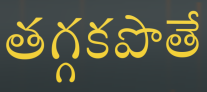
తగ్గకపొతే